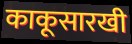
काकूसारखी